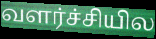
வளர்ச்சியில